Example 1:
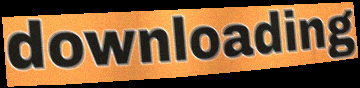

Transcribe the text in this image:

downloading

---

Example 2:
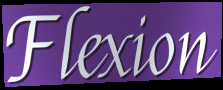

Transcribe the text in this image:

Flexion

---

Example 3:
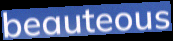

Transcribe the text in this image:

beauteous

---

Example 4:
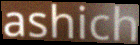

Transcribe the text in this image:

ashich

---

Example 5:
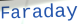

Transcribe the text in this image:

Faraday